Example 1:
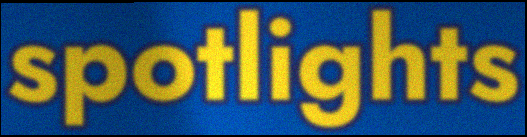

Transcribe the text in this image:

spotlights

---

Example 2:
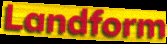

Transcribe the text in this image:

Landform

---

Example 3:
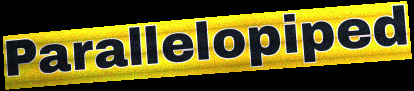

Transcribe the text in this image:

Parallelopiped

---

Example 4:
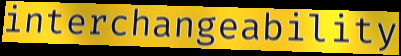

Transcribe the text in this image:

interchangeability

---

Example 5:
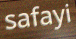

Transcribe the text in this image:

safayi